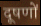
दूषणों